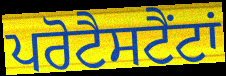
ਪਰੋਟੈਸਟੈਂਟਾਂ